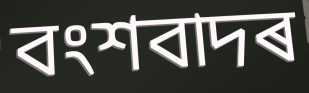
বংশবাদৰ